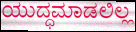
ಯುದ್ಧಮಾಡಲಿಲ್ಲ